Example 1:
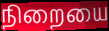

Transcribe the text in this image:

நிறையை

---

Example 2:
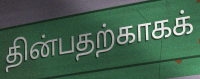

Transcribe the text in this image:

தின்பதற்காகக்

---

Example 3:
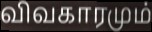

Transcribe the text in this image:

விவகாரமும்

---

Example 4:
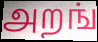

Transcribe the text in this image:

அறங்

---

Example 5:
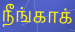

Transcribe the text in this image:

நீங்காக்